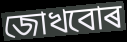
জোখবোৰ